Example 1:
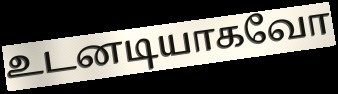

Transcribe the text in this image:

உடனடியாகவோ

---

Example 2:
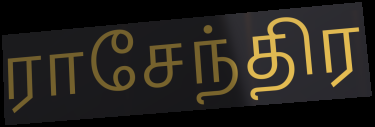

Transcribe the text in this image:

ராசேந்திர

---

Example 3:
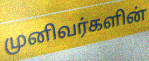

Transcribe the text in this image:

முனிவர்களின்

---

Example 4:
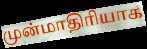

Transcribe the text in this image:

முன்மாதிரியாக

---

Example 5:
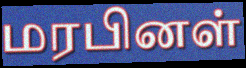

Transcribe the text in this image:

மரபினள்